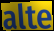
alte